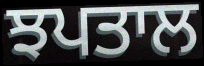
ਝਪਤਾਲ